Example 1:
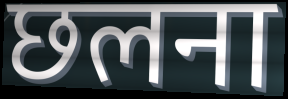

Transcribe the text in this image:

छलना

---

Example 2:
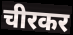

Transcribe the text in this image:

चीरकर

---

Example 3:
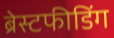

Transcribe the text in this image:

ब्रेस्टफीडिंग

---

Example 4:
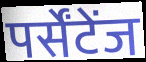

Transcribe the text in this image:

पर्सेंटेंज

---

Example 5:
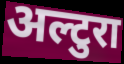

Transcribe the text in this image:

अल्टुरा